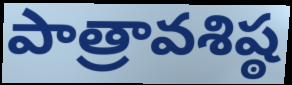
పాత్రావశిష్ఠ